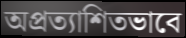
অপ্রত্যাশিতভাবে